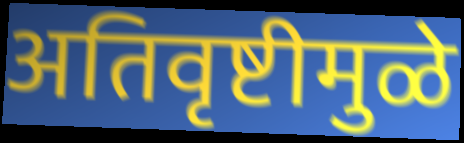
अतिवृष्टीमुळे